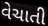
વેચાતી